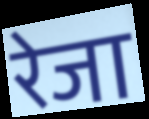
रेजा